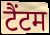
टैंटम